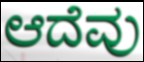
ಆದೆವು